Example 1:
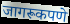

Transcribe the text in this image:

जागरूकपणे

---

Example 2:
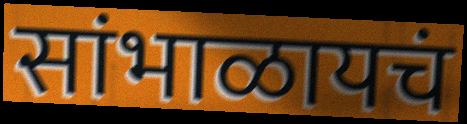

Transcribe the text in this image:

सांभाळायचं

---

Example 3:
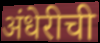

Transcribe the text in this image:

अंधेरीची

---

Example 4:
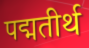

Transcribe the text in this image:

पद्मतीर्थ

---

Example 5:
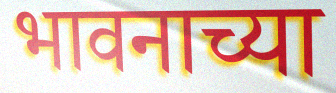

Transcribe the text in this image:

भावनाच्या